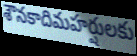
శౌనకాదిమహర్షులకు